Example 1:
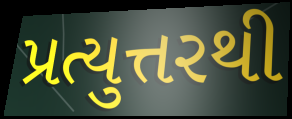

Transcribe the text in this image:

પ્રત્યુત્તરથી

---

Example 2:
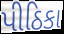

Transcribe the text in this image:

પીઠિકા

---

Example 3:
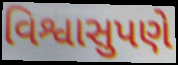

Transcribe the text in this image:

વિશ્વાસુપણે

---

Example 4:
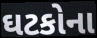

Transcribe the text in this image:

ઘટકોના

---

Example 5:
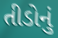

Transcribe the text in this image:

તીડોનું